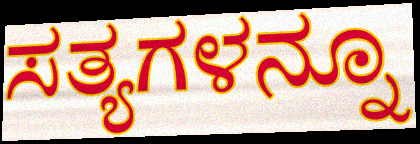
ಸತ್ಯಗಳನ್ನೂ